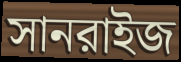
সানরাইজ